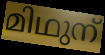
മിഥുന്